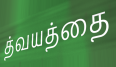
த்வயத்தை